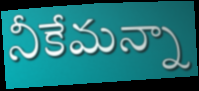
నీకేమన్నా